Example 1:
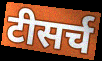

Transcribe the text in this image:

टीसर्च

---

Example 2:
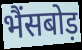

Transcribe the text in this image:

भैंसबोड़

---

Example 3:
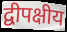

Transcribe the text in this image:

द्वीपक्षीय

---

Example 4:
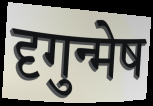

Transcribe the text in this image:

दृगुन्मेष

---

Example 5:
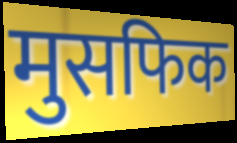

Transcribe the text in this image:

मुसफिक